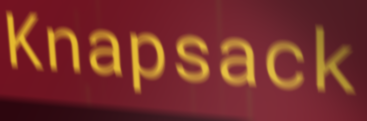
Knapsack